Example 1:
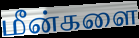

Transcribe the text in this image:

மீன்களை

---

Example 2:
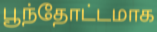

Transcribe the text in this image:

பூந்தோட்டமாக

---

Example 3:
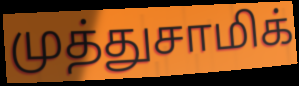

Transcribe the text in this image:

முத்துசாமிக்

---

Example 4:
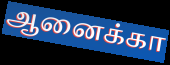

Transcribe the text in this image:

ஆனைக்கா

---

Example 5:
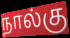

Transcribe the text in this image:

நால்கு